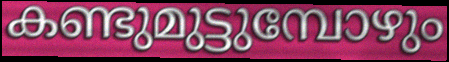
കണ്ടുമുട്ടുമ്പോഴും